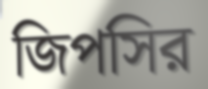
জিপসির